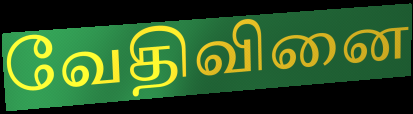
வேதிவினை